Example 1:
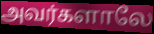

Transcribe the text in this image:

அவர்களாலே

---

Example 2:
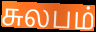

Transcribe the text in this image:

சுலபம்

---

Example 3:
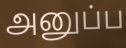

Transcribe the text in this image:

அனுப்ப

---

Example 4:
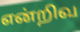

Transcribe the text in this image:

என்றிவ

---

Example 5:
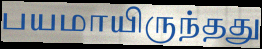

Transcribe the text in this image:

பயமாயிருந்தது